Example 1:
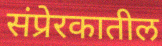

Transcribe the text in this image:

संप्रेरकातील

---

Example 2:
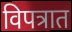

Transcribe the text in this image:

विपत्रात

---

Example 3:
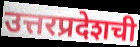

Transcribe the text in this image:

उत्तरप्रदेशची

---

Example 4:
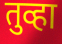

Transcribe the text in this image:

तुव्हा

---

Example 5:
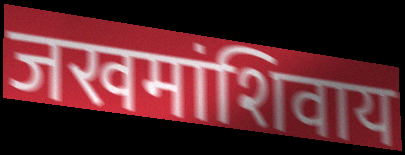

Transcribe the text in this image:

जखमांशिवाय